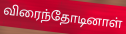
விரைந்தோடினாள்